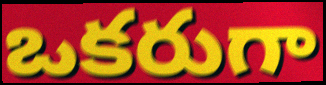
ఒకరుగా